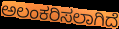
ಅಲಂಕರಿಸಲಾಗಿದೆ